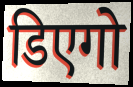
डिएगो